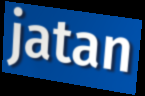
jatan